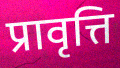
प्रावृत्ति